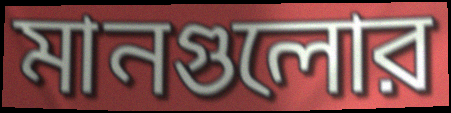
মানগুলোর